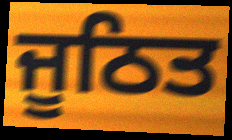
ਜੂਠਿਤ